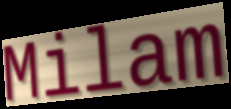
Milam